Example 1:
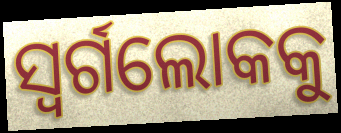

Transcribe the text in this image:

ସ୍ବର୍ଗଲୋକକୁ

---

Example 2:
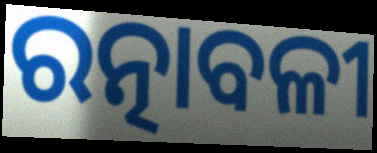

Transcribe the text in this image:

ରତ୍ନାବଳୀ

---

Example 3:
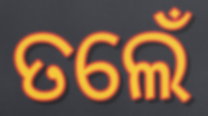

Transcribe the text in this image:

ତଲେଁ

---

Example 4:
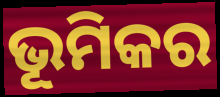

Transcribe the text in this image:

ଭୂମିକର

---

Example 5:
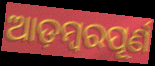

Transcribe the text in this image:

ଆଡ଼ମ୍ବରପୂର୍ଣ